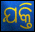
ଯକ୍ତି